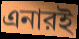
এনারই